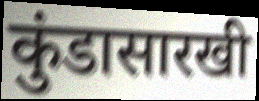
कुंडासारखी